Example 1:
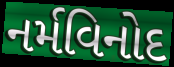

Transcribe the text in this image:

નર્મવિનોદ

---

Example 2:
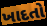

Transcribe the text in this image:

ખાદતો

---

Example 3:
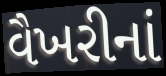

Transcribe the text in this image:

વૈખરીનાં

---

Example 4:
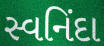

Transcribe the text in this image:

સ્વનિંદા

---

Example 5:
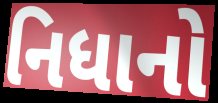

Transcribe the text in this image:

નિધાનો